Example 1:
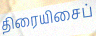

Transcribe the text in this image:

திரையிசைப்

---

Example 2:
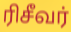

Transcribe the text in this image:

ரிசீவர்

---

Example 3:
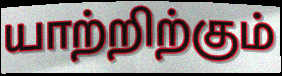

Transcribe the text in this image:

யாற்றிற்கும்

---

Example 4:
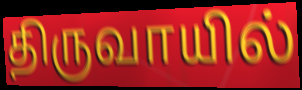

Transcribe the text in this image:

திருவாயில்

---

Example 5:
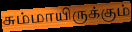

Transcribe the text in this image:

சும்மாயிருக்கும்